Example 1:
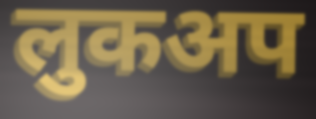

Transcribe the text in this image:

लुकअप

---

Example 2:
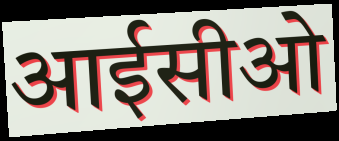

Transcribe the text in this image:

आईसीओ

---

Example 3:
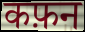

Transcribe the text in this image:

कफ़न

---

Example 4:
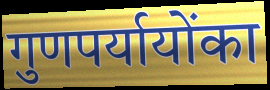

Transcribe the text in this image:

गुणपर्यायोंका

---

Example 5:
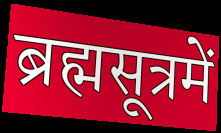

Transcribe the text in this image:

ब्रह्मसूत्रमें